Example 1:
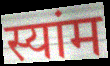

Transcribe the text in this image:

स्यांम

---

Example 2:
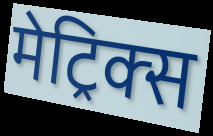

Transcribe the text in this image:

मेट्रिक्‍स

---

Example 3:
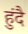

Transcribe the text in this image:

हुंदै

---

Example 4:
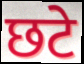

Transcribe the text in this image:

छटे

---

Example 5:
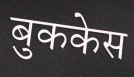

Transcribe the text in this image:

बुककेस